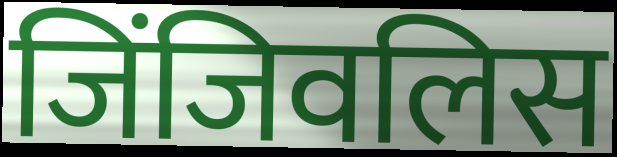
जिंजिवलिस